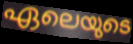
ഏലെയുടെ